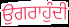
ਉਗਰਾਹੁੰਦੀ